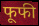
फूफी